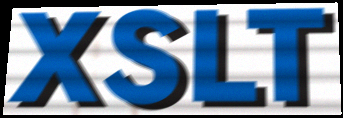
XSLT